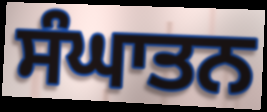
ਸੰਘਾਤਨ